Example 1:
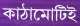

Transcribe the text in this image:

কাঠামোটিই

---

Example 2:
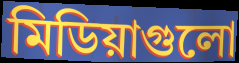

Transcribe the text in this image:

মিডিয়াগুলো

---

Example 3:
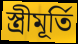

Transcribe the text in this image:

স্ত্রীমূর্তি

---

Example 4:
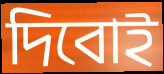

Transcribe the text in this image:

দিবোই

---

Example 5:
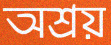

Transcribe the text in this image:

অশ্রয়